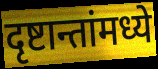
दृष्टान्तांमध्ये